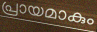
പ്രായമാകും